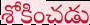
శోకించడు